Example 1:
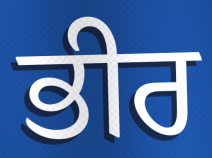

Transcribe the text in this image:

ਭੀਰ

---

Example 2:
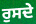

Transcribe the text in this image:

ਰੁਸਦੇ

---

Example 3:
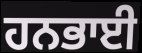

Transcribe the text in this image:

ਹਨਭਾਈ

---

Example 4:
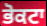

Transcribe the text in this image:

ਭੋਕਟਾ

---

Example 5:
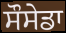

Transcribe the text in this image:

ਸੌਸੇਡਾ